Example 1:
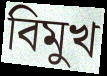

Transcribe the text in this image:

বিমুখ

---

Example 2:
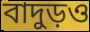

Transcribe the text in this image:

বাদুড়ও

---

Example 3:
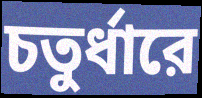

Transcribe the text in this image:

চতুর্ধারে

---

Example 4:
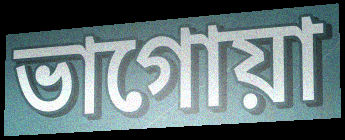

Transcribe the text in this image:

ভাগোয়া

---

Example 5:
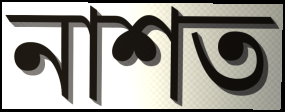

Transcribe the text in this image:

নাশত